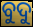
ବୁଦୁ